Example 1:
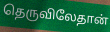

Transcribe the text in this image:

தெருவிலேதான்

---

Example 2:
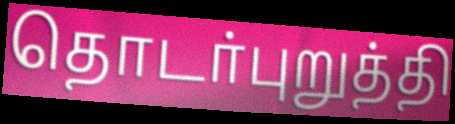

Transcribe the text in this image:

தொடர்புறுத்தி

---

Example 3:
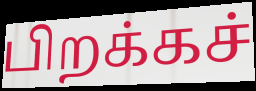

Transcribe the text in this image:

பிறக்கச்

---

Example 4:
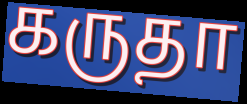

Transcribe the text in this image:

கருதா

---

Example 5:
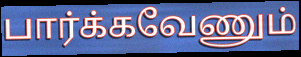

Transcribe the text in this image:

பார்க்கவேணும்